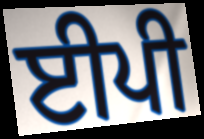
ਈਪੀ